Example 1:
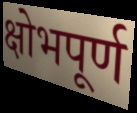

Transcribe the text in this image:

क्षोभपूर्ण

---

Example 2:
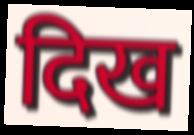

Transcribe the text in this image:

दिख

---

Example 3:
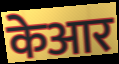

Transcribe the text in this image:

केआर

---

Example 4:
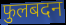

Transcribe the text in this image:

फुलबदन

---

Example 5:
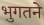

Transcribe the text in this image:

भुगतने